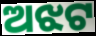
ଅଝଟ